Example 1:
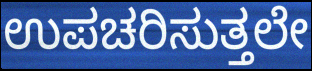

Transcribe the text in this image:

ಉಪಚರಿಸುತ್ತಲೇ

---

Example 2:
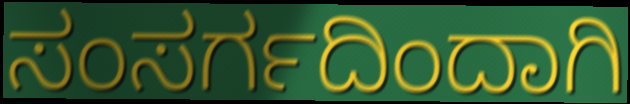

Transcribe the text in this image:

ಸಂಸರ್ಗದಿಂದಾಗಿ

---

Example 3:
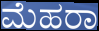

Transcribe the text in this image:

ಮೆಹರಾ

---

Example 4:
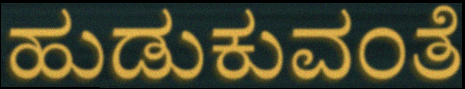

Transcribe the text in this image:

ಹುಡುಕುವಂತೆ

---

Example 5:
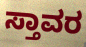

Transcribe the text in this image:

ಸ್ತಾವರ